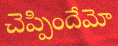
చెప్పిందేమో